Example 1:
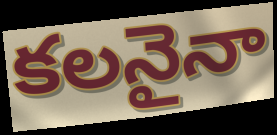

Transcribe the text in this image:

కలనైనా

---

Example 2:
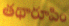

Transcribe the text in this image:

తథారూపిం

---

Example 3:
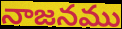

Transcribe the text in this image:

నాజనము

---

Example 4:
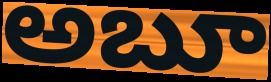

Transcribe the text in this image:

అబూ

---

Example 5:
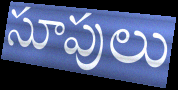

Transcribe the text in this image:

సూపులు